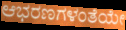
ಆಭರಣಗಳಂತೆಯೇ